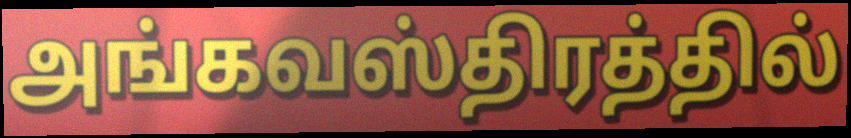
அங்கவஸ்திரத்தில்